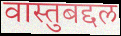
वास्तुबद्दल